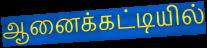
ஆனைக்கட்டியில்